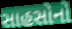
સાહસોનો